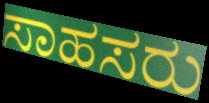
ಸಾಹಸರು